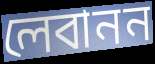
লেবানন